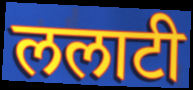
ललाटी